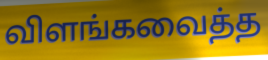
விளங்கவைத்த